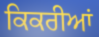
ਕਿਕਰੀਆਂ